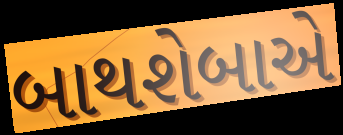
બાથશેબાએ